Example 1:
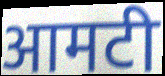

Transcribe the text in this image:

आमटी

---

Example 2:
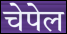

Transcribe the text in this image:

चेपेल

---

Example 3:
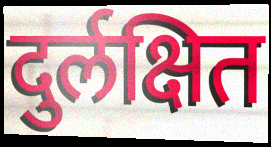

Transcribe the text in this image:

दुर्लक्षित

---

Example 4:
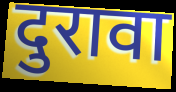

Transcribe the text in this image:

दुरावा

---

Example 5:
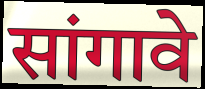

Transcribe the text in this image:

सांगावे